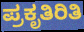
ಪ್ರಕೃತಿರಿತಿ